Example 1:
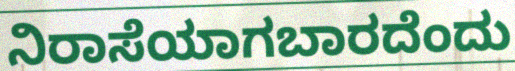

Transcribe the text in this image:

ನಿರಾಸೆಯಾಗಬಾರದೆಂದು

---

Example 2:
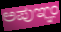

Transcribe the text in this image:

ಅಪುಞ್ಞಂ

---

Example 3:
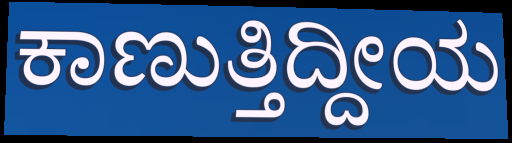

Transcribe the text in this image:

ಕಾಣುತ್ತಿದ್ದೀಯ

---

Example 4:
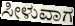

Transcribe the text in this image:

ಸೀಳುವಾಗ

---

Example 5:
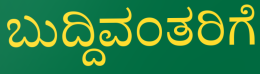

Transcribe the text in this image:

ಬುದ್ದಿವಂತರಿಗೆ